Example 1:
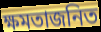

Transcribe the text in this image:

ক্ষমতাজনিত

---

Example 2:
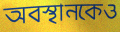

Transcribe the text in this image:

অবস্থানকেও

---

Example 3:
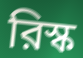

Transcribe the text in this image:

রিস্ক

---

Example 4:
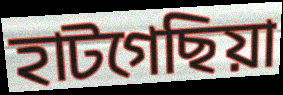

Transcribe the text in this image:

হাটগেছিয়া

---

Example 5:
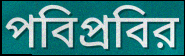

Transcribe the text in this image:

পবিপ্রবির